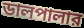
ডালপালার